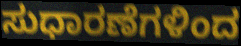
ಸುಧಾರಣೆಗಳಿಂದ